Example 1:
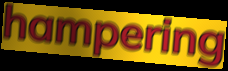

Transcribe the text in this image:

hampering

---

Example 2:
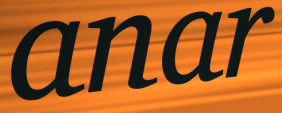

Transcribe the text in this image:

anar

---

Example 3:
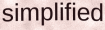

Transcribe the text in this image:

simplified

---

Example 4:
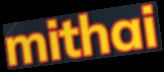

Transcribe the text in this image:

mithai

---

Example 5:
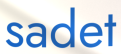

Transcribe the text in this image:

sadet